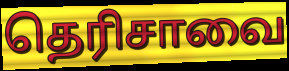
தெரிசாவை